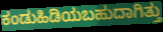
ಕಂಡುಹಿಡಿಯಬಹುದಾಗಿತ್ತು